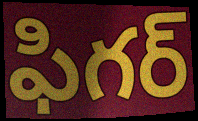
ఫిగర్